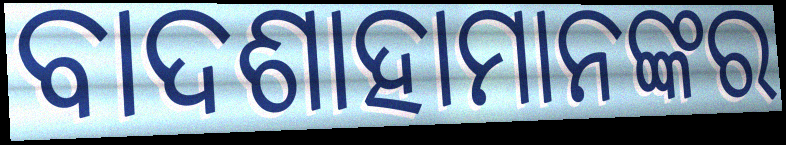
ବାଦଶାହାମାନଙ୍କର